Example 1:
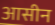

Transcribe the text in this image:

आसीन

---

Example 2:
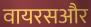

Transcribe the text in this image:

वायरसऔर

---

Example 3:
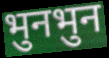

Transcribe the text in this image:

भुनभुन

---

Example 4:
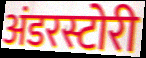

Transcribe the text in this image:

अंडरस्टोरी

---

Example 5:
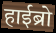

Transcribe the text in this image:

हाईब्रो